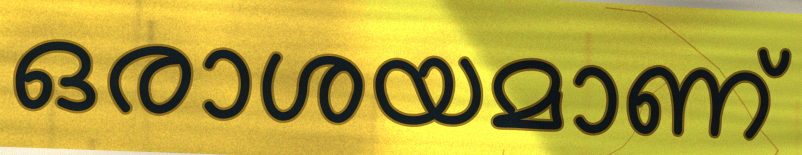
ഒരാശയമാണ്